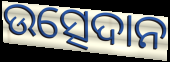
ଉତ୍ସେଦାନ